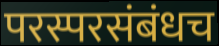
परस्परसंबंधच